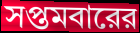
সপ্তমবারের